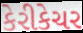
કેરીકેચર